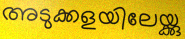
അടുക്കളയിലേയ്ക്കു